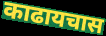
काढायचास